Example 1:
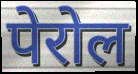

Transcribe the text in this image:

पेरोल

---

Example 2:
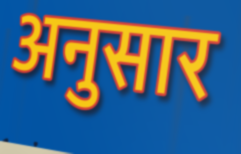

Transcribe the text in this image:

अनुसार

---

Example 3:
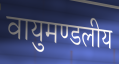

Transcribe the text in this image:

वायुमण्डलीय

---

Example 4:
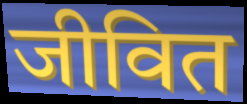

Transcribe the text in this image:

जीवित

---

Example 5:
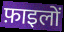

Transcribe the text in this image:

फ़ाइलों